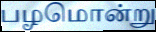
பழமொன்று